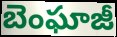
బెంఘాజీ